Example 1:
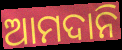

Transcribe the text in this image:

ଆମଦାନି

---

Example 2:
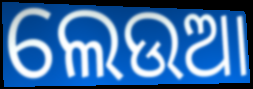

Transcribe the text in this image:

ଲେଉଆ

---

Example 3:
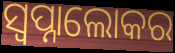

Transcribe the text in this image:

ସ୍ୱପ୍ନାଲୋକର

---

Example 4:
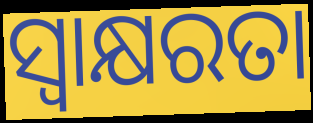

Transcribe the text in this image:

ସ୍ବାକ୍ଷରତା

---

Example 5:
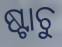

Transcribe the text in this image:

ଷ୍ଟାଚୁ